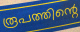
രൂപത്തിന്റെ